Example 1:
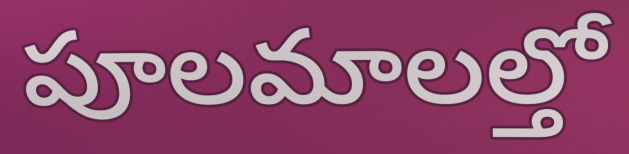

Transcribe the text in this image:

పూలమాలల్తో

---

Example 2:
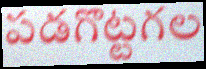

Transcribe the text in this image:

పడగొట్టగల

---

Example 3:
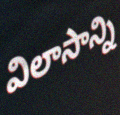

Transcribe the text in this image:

విలాసాన్ని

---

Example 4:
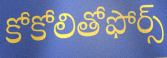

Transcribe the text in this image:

కోకోలితోఫోర్స్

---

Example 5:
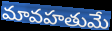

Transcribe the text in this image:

మావహతుమే